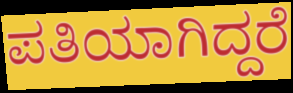
ಪತಿಯಾಗಿದ್ದರೆ